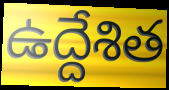
ఉద్దేశిత